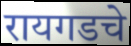
रायगडचे